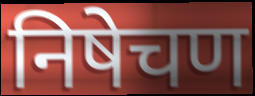
निषेचण